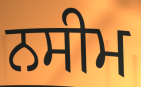
ਨਸੀਮ